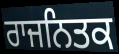
ਰਾਜਨਿਤਕ